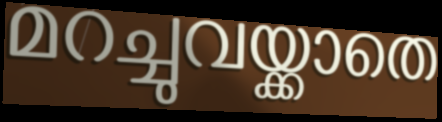
മറച്ചുവയ്ക്കാതെ